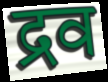
द्रव